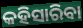
କହିସାରିବା